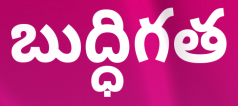
బుద్ధిగత